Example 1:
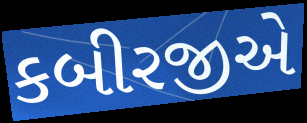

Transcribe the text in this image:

કબીરજીએ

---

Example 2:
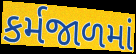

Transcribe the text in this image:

કર્મજાળમાં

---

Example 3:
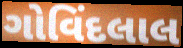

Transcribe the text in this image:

ગોવિંદલાલ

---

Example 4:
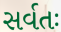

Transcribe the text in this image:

સર્વતઃ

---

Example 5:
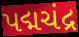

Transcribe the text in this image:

પદ્મચંદ્ર